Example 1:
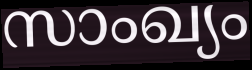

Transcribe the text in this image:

സാംഖ്യം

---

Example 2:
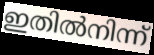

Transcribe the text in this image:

ഇതിൽനിന്ന്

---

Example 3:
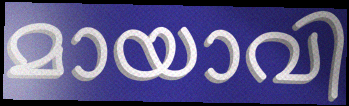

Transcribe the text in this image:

മായാവി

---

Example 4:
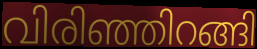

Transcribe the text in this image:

വിരിഞ്ഞിറങ്ങി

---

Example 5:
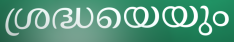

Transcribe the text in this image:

ശ്രദ്ധയെയും